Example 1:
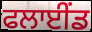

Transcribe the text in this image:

ਫਲਾਈਂਡ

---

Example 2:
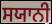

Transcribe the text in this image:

ਸਯਾਨੀ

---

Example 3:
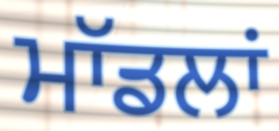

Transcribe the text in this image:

ਮਾੱਡਲਾਂ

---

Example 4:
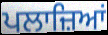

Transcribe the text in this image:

ਪਲਾਜ਼ਿਆਂ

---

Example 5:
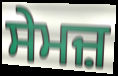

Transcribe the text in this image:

ਸੇਮਜ਼